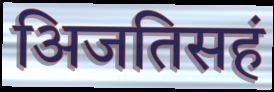
अिजतिसहं